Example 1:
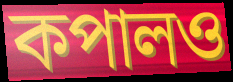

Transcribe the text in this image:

কপালও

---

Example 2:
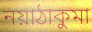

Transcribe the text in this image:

নয়াঠাকুমা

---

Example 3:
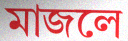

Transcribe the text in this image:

মাজলে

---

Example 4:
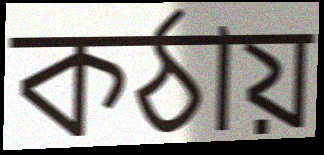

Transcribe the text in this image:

কঠায়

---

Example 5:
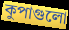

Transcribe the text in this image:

কুপাগুলো